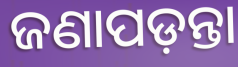
ଜଣାପଡ଼ନ୍ତା